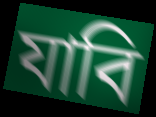
যাবি